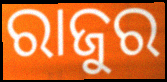
ରାଜୁର